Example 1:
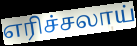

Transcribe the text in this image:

எரிச்சலாய்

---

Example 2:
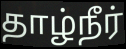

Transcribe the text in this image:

தாழ்நீர்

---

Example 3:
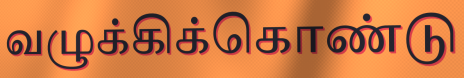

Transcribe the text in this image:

வழுக்கிக்கொண்டு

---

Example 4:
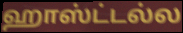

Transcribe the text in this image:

ஹாஸ்ட்டல்ல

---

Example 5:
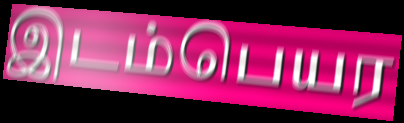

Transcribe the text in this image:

இடம்பெயர